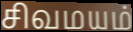
சிவமயம்